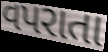
વપરાતા